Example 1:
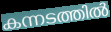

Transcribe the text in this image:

കന്നടത്തിൽ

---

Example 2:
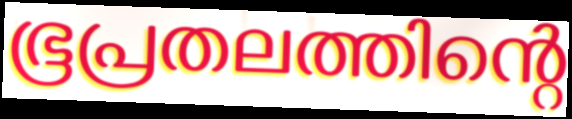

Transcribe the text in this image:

ഭൂപ്രതലത്തിന്റെ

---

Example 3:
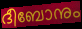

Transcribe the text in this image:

ദീബോനും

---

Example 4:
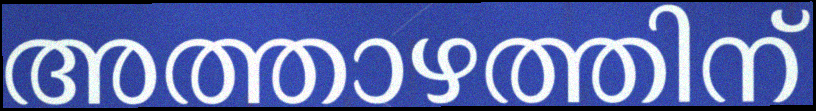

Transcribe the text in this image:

അത്താഴത്തിന്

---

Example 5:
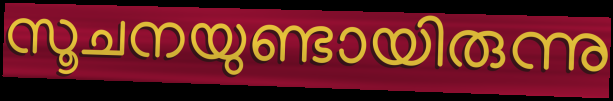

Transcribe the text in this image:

സൂചനയുണ്ടായിരുന്നു